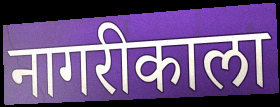
नागरीकाला